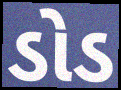
ડોડ